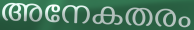
അനേകതരം